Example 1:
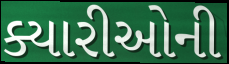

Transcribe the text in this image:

ક્યારીઓની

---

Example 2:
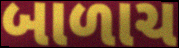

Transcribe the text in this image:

બાળાચ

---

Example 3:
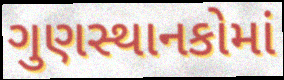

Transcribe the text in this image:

ગુણસ્થાનકોમાં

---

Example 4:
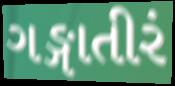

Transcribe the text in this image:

ગઙ્ગાતીરં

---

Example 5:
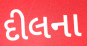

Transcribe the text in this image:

દીલના